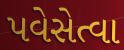
પવેસેત્વા